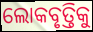
ଲୋକବୃତ୍ତିକୁ